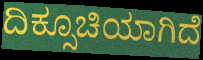
ದಿಕ್ಸೂಚಿಯಾಗಿದೆ